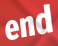
end